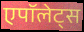
एपॉलेट्स